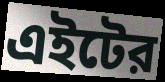
এইটের